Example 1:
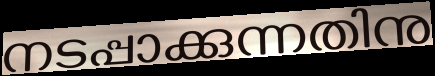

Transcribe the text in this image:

നടപ്പാക്കുന്നതിനു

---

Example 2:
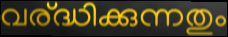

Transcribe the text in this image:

വര്ദ്ധിക്കുന്നതും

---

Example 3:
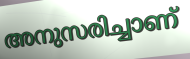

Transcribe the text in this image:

അനുസരിച്ചാണ്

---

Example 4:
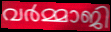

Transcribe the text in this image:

വർമ്മാജി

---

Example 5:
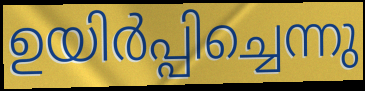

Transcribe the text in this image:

ഉയിർപ്പിച്ചെന്നു